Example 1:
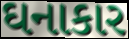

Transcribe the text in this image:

ઘનાકાર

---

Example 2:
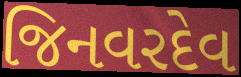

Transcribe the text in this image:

જિનવરદેવ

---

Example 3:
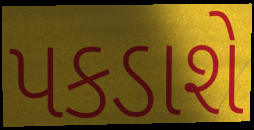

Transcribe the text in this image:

પકડાશે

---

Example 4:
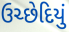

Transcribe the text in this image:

ઉચ્છેદિયું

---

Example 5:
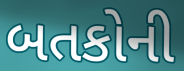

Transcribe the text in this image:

બતકોની